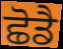
ਛੋਡੈ